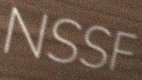
NSSF